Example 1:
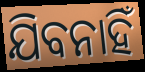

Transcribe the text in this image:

ଯିବନାହିଁ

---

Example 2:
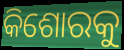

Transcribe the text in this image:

କିଶୋରକୁ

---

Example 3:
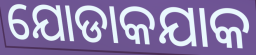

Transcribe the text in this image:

ଯୋଡାକଯାକ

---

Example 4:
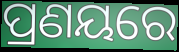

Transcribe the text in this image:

ପ୍ରଣୟରେ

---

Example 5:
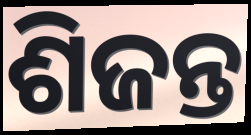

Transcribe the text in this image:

ଶିଜନ୍ତ